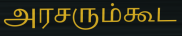
அரசரும்கூட